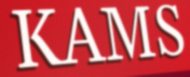
KAMS